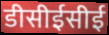
डीसीईसीई